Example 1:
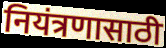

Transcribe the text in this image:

नियंत्रणासाठी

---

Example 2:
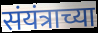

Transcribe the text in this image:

संयंत्राच्या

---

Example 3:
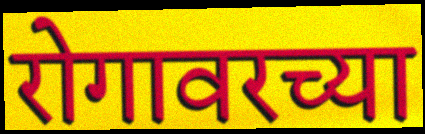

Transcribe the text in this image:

रोगावरच्या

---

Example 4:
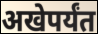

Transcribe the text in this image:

अखेपर्यंत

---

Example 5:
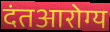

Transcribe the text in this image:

दंतआरोग्य